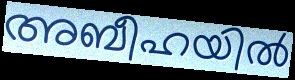
അബീഹയിൽ